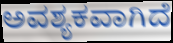
ಅವಶ್ಯಕವಾಗಿದೆ